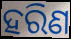
ହରିଣ